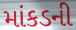
માંકડની